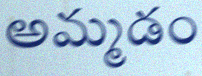
అమ్మడం